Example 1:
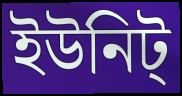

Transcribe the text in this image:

ইউনিট্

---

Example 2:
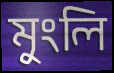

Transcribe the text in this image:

মুংলি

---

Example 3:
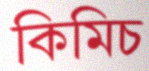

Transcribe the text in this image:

কিমিচ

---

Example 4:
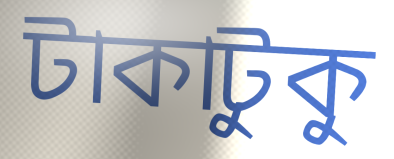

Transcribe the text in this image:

টাকাটুকু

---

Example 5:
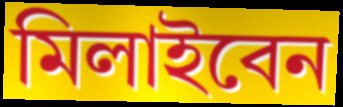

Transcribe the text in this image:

মিলাইবেন